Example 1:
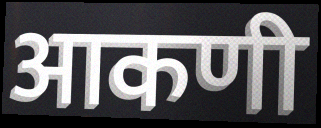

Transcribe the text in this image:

आकणी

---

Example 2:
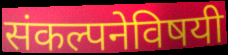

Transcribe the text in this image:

संकल्पनेविषयी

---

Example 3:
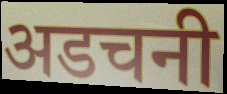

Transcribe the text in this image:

अडचनी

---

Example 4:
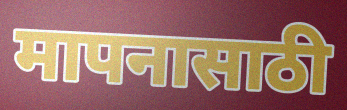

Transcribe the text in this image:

मापनासाठी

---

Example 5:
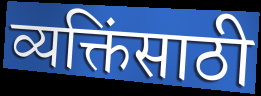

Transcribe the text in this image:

व्यक्तिंसाठी